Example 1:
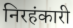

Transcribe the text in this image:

निरहंकारी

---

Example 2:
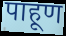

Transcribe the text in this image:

पाहूण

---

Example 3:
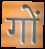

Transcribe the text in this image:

गों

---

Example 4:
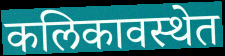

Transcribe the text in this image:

कलिकावस्थेत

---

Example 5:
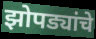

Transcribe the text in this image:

झोपड्यांचे